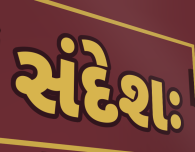
સંદેશઃ